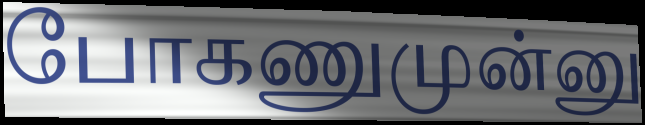
போகணுமுன்னு